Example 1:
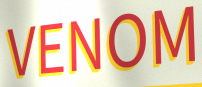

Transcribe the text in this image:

VENOM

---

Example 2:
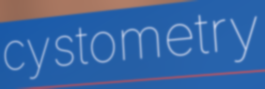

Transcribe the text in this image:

cystometry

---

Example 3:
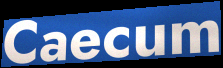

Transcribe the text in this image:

Caecum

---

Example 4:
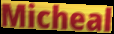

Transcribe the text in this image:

Micheal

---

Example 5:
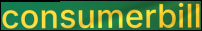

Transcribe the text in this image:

consumerbill